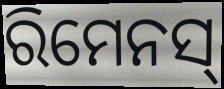
ରିମେନସ୍